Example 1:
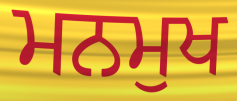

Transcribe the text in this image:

ਮਨਮੁਖ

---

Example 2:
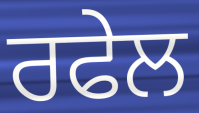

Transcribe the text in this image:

ਰਫੇਲ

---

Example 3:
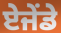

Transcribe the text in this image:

ਏਜੇਂਡੇ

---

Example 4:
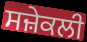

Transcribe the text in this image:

ਸਜ਼ੇਕਲੀ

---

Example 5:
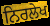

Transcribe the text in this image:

ਨਿਰਲੇਖ